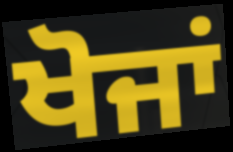
ਖੋਜਾਂ